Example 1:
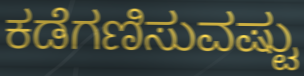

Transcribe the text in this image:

ಕಡೆಗಣಿಸುವಷ್ಟು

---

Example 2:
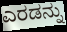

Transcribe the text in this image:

ಎರಡನ್ನು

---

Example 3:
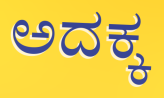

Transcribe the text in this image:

ಅದಕ್ಕ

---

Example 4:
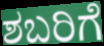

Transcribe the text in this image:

ಶಬರಿಗೆ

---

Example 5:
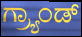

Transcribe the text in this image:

ಗ್ರ್ಯಾಂಡ್